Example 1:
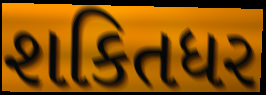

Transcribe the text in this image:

શકિતધર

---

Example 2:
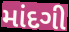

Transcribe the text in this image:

માંદગી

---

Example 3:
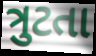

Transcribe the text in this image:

ત્રુટતા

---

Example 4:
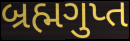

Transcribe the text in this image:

બ્રહ્મગુપ્ત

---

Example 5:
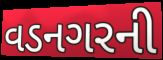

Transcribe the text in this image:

વડનગરની